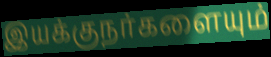
இயக்குநர்களையும்